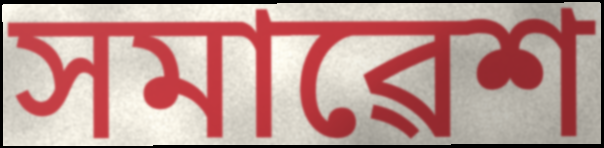
সমাৱেশ